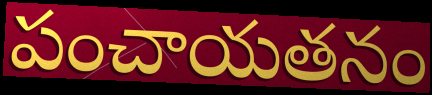
పంచాయతనం